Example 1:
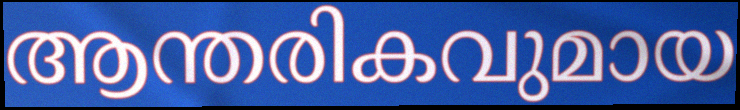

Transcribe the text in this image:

ആന്തരികവുമായ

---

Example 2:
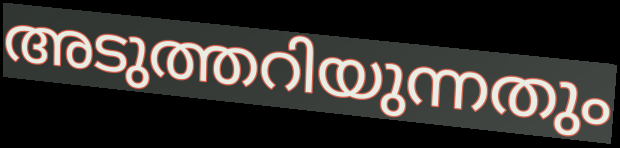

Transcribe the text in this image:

അടുത്തറിയുന്നതും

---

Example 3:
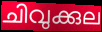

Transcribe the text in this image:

ചിവുക്കുല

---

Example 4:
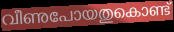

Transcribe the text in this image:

വീണുപോയതുകൊണ്ട്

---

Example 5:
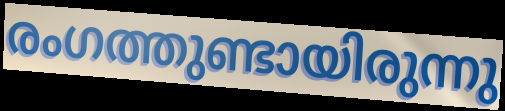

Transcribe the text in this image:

രംഗത്തുണ്ടായിരുന്നു